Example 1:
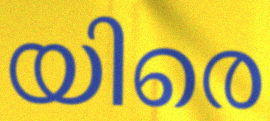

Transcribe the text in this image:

യിരെ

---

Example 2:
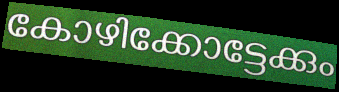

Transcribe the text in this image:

കോഴിക്കോട്ടേക്കും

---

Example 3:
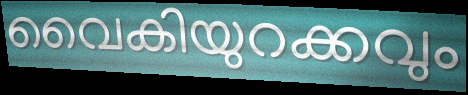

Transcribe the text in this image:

വൈകിയുറക്കവും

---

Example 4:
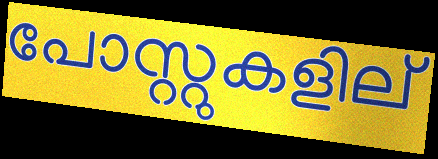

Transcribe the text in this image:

പോസ്റ്റുകളില്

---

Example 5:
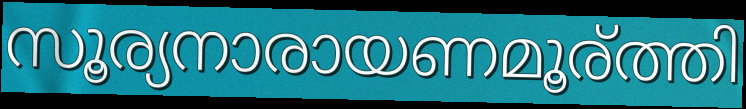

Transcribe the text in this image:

സൂര്യനാരായണമൂര്ത്തി